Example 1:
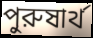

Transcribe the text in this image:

পুরুষার্থ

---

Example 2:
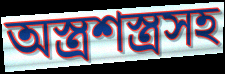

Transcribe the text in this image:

অস্ত্রশস্ত্রসহ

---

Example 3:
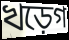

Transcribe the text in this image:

খড়েগ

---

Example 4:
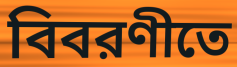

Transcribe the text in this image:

বিবরণীতে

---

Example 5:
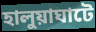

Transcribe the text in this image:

হালুয়াঘাটে